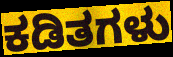
ಕಡಿತಗಳು